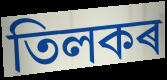
তিলকৰ